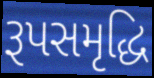
રૂપસમૃદ્ધિ